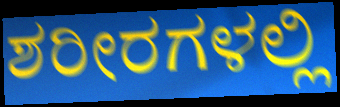
ಶರೀರಗಳಲ್ಲಿ